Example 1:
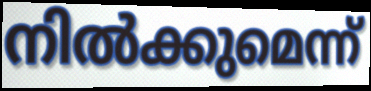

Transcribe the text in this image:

നിൽക്കുമെന്ന്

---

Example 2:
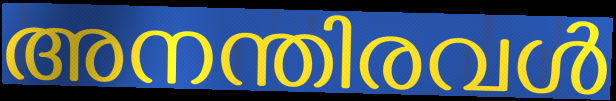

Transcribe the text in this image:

അനന്തിരവൾ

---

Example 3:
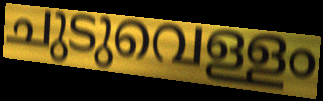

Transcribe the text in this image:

ചുടുവെള്ളം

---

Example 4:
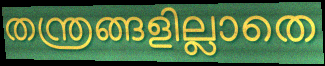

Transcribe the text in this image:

തന്ത്രങ്ങളില്ലാതെ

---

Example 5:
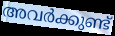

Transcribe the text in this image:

അവർക്കുണ്ട്